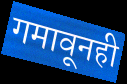
गमावूनही